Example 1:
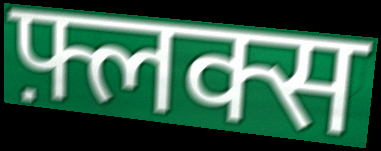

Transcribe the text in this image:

फ़्लक्स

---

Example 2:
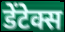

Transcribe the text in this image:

डेंटेक्स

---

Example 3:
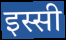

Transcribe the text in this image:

इस्सी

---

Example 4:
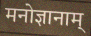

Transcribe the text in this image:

मनोज्ञानाम्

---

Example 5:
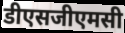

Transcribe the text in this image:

डीएसजीएमसी